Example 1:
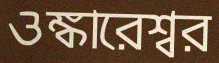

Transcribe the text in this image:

ওঙ্কারেশ্বর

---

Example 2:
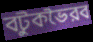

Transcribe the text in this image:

বটুকভৈরব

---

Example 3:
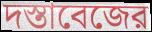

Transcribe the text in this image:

দস্তাবেজের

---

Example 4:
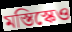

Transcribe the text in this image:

মস্তিস্কেও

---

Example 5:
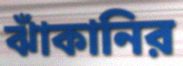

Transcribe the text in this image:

ঝাঁকানির